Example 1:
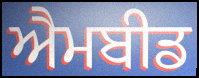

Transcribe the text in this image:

ਐਮਬੀਡ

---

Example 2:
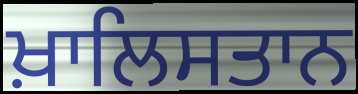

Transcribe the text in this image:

ਖ਼ਾਲਿਸਤਾਨ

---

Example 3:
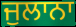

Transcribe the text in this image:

ਜੁਲਾਨਾ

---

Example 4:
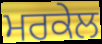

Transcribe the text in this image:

ਮਰਕੇਲ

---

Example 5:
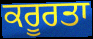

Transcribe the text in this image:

ਕਰੂਰਤਾ